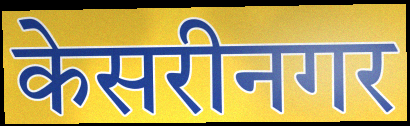
केसरीनगर